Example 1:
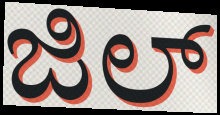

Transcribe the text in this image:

ಜಿಲ್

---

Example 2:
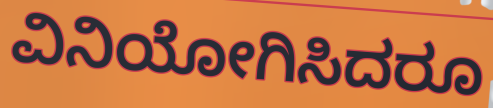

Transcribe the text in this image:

ವಿನಿಯೋಗಿಸಿದರೂ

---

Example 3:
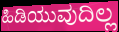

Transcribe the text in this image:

ಹಿಡಿಯುವುದಿಲ್ಲ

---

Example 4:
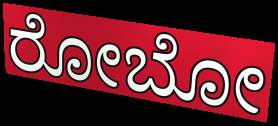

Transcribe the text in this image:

ರೋಬೋ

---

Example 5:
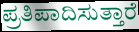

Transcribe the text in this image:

ಪ್ರತಿಪಾದಿಸುತ್ತಾರೆ